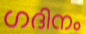
ഗദിനം